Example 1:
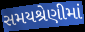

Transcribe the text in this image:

સમયશ્રેણીમાં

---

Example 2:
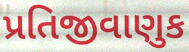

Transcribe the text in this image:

પ્રતિજીવાણુક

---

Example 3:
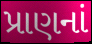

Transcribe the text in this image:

પ્રાણનાં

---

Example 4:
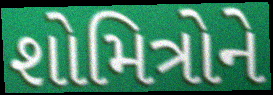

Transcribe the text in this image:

શોમિત્રોને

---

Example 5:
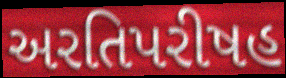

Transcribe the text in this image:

અરતિપરીષહ